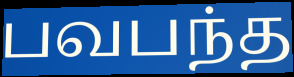
பவபந்த